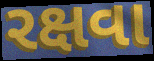
રક્ષવા